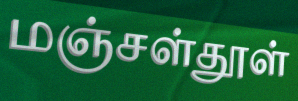
மஞ்சள்தூள்